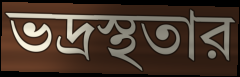
ভদ্রস্থতার